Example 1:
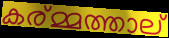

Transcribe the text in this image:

കര്മ്മത്താല്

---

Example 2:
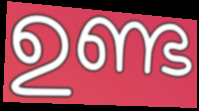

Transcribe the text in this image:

ഉണ്ട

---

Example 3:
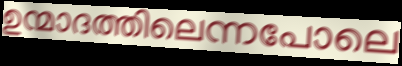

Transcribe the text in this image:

ഉന്മാദത്തിലെന്നപോലെ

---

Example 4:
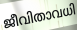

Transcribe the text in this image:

ജീവിതാവധി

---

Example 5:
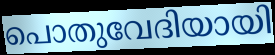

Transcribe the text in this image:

പൊതുവേദിയായി